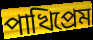
পাখিপ্রেম